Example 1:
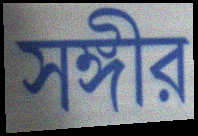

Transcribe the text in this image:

সঙ্গীর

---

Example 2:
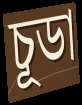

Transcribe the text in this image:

চূডা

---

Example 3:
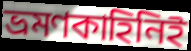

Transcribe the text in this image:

ভ্রমণকাহিনিই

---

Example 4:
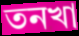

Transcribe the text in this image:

তনখা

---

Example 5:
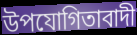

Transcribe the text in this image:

উপযোগিতাবাদী